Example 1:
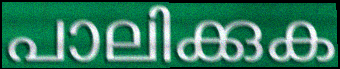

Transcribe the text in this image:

പാലിക്കുക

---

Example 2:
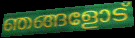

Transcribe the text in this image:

ഞങ്ങളോട്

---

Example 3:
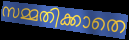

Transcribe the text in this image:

സമ്മതിക്കാതെ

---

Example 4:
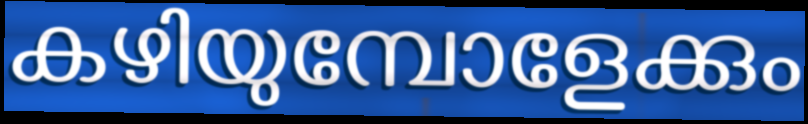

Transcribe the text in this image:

കഴിയുമ്പോളേക്കും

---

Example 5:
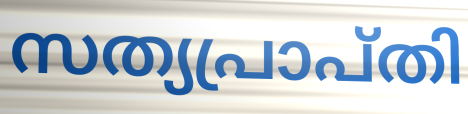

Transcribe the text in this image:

സത്യപ്രാപ്തി